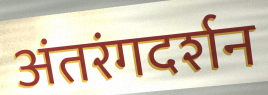
अंतरंगदर्शन